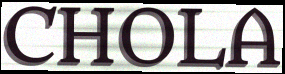
CHOLA